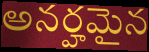
అనర్హమైన